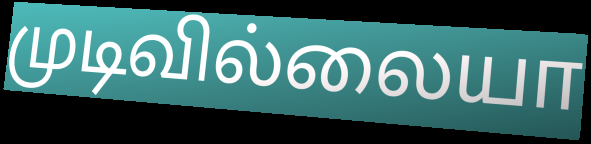
முடிவில்லையா